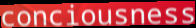
conciousness